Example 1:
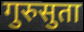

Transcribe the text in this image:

गुरुसुता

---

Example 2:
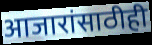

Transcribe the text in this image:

आजारांसाठीही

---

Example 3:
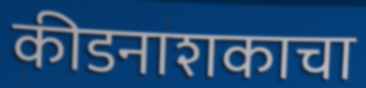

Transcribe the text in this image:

कीडनाशकाचा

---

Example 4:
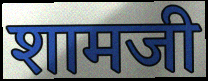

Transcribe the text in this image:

शामजी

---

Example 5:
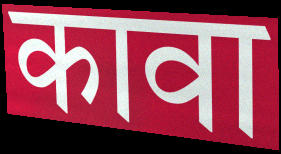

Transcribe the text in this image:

कावा